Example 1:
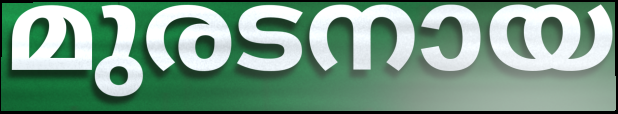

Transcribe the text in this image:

മുരടനായ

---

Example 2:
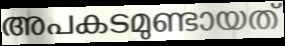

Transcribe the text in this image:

അപകടമുണ്ടായത്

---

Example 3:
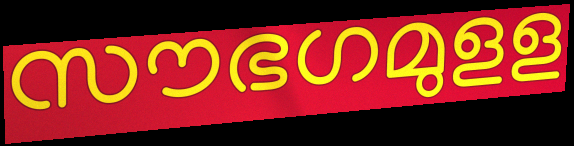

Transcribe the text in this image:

സൗഭഗമുളള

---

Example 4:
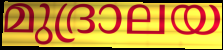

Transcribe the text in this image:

മുദ്രാലയ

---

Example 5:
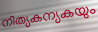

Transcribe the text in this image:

നിത്യകന്യകയും